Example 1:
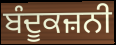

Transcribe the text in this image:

ਬੰਦੂਕਜ਼ਨੀ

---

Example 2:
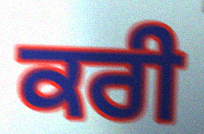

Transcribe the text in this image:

ਕਰੀ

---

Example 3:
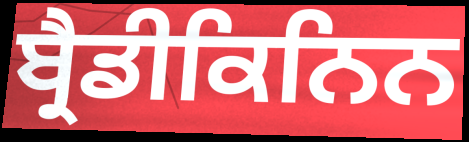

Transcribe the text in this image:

ਬ੍ਰੈਡੀਕਿਨਿਨ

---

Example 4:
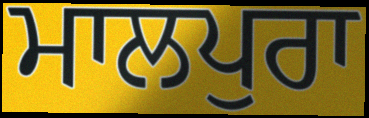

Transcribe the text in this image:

ਮਾਲਪੁਰਾ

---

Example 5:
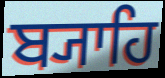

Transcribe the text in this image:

ਬ੍ਯਾਹਿ